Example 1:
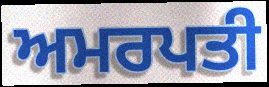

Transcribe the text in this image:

ਅਮਰਪਤੀ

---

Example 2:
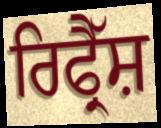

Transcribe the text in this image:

ਰਿਫ੍ਰੈੱਸ਼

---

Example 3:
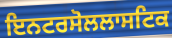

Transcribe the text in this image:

ਇਨਟਰਸੋਲਲਾਸਟਿਕ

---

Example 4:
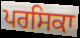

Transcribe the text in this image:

ਪਰਸਿਕਾ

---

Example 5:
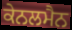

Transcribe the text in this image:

ਕੇਨਲਮੈਨ